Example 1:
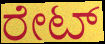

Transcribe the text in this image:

ರೇಟ್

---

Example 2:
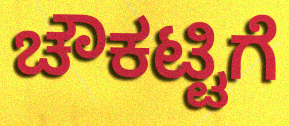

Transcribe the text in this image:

ಚೌಕಟ್ಟಿಗೆ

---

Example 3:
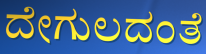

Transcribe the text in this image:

ದೇಗುಲದಂತೆ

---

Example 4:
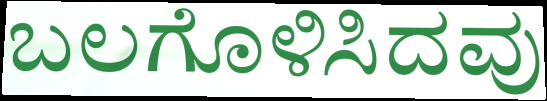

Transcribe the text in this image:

ಬಲಗೊಳಿಸಿದವು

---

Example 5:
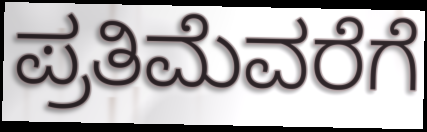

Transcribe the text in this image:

ಪ್ರತಿಮೆವರೆಗೆ